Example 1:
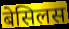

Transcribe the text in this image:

बेसिलस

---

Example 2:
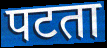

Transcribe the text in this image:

पटता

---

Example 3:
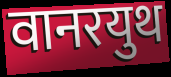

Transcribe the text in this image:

वानरयुथ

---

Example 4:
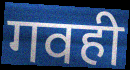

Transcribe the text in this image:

गवही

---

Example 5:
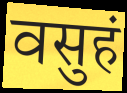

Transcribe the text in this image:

वसुहं